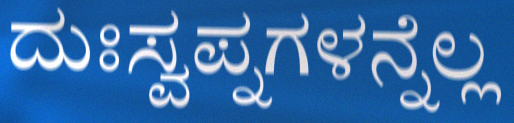
ದುಃಸ್ವಪ್ನಗಳನ್ನೆಲ್ಲ